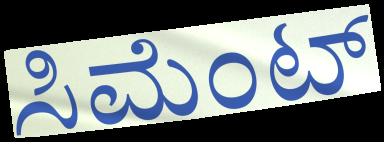
ಸಿಮೆಂಟ್